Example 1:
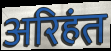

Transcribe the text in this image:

अरिहंत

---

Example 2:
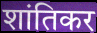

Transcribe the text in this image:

शांतिकर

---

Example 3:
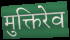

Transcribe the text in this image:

मुक्तिरेव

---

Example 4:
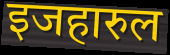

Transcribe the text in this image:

इजहारुल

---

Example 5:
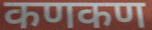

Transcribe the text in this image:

कणकण